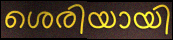
ശെരിയായി